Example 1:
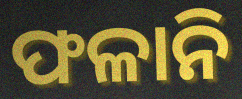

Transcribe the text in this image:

ଫଳାନି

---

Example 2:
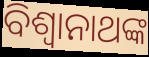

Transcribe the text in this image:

ବିଶ୍ୱାନାଥଙ୍କ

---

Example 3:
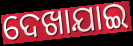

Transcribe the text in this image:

ଦେଖାଯାଇ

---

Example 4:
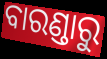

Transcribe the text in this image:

ବାରଣ୍ଡାରୁ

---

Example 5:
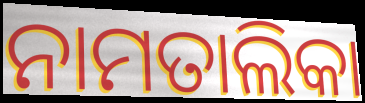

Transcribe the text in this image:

ନାମତାଲିକା